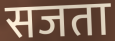
सजता